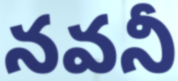
నవనీ